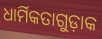
ଧାର୍ମିକତାଗୁଡ଼ାକ